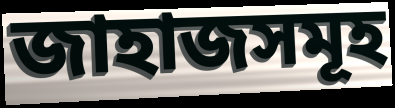
জাহাজসমূহ